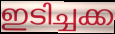
ഇടിച്ചക്ക